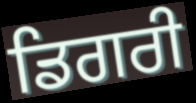
ਡਿਗਰੀ